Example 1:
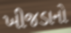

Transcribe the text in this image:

ખીજડાનો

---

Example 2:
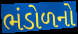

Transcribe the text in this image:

ભંડોળનો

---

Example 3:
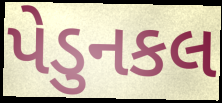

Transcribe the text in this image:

પેડુનકલ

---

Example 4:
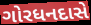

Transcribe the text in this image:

ગોરધનદાસે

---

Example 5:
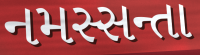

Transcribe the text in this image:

નમસ્સન્તા